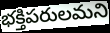
భక్తిపరులమని